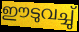
ഈടുവച്ചു്